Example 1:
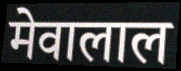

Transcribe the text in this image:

मेवालाल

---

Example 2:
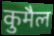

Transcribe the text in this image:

कुमैल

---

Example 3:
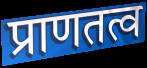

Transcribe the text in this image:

प्राणतत्व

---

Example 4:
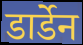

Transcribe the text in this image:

डार्डेन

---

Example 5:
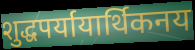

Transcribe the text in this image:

शुद्धपर्यायार्थिकनय